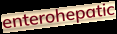
enterohepatic